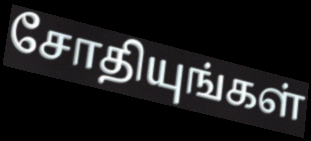
சோதியுங்கள்